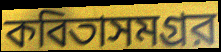
কবিতাসমগ্রর